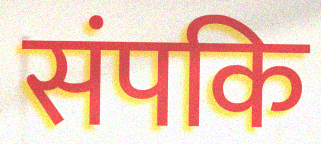
संपकि